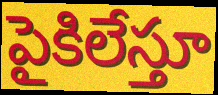
పైకిలేస్తూ